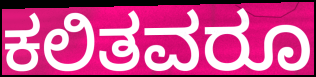
ಕಲಿತವರೂ